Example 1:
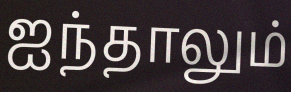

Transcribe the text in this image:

ஐந்தாலும்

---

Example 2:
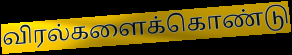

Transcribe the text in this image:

விரல்களைக்கொண்டு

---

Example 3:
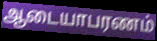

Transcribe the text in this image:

ஆடையாபரணம்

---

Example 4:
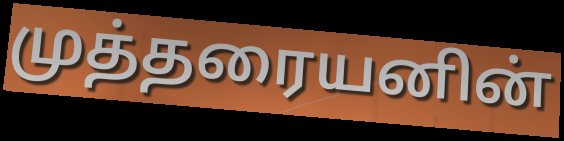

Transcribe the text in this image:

முத்தரையனின்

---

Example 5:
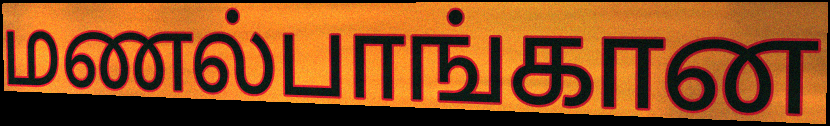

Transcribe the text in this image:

மணல்பாங்கான